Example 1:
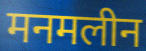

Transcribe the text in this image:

मनमलीन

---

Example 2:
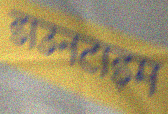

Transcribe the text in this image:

डाउनटाइम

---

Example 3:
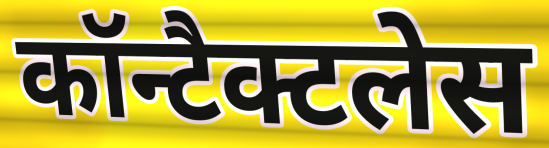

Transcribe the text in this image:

कॉन्टैक्टलेस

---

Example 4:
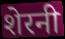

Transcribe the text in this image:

शेरनी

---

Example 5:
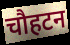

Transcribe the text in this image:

चौहटन